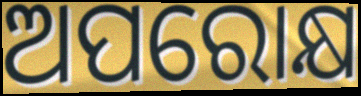
ଅପରୋକ୍ଷ